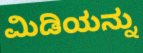
ಮಿಡಿಯನ್ನು